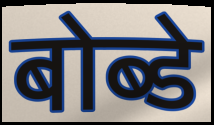
बोब्डे